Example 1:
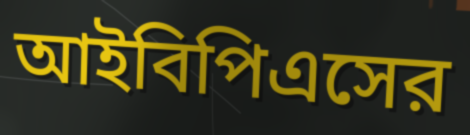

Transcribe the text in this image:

আইবিপিএসের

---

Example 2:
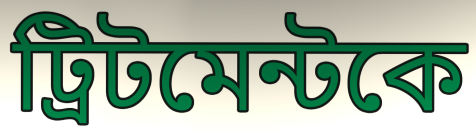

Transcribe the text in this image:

ট্রিটমেন্টকে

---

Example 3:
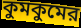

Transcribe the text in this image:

কুমকুমের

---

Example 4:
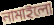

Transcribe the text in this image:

নামাইলো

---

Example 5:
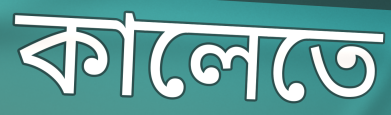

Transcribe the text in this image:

কালেতে